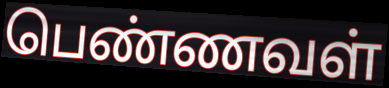
பெண்ணவள்